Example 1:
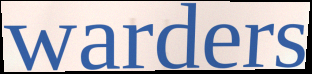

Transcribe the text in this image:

warders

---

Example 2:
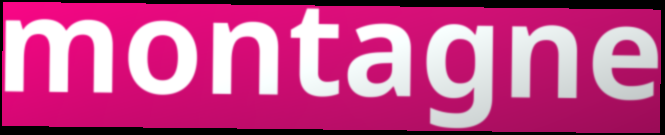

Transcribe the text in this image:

montagne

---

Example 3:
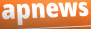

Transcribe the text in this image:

apnews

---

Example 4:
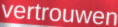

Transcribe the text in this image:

vertrouwen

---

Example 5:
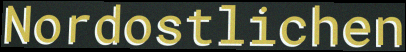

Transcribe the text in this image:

Nordostlichen